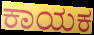
ಕಾಯಕ